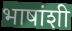
भाषांशी